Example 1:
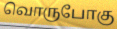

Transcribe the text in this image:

வொருபோகு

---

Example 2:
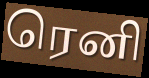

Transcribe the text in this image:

ரெனி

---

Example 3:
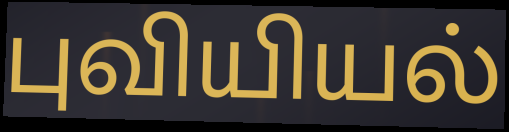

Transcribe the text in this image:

புவியியல்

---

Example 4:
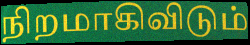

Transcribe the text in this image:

நிறமாகிவிடும்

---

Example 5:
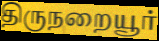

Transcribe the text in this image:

திருநறையூர்